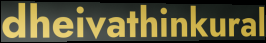
dheivathinkural